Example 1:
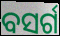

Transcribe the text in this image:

ବସର୍ଗ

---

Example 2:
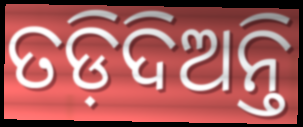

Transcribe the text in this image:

ତଡ଼ିଦିଅନ୍ତି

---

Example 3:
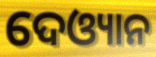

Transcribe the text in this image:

ଦେଓ୍ୟାନ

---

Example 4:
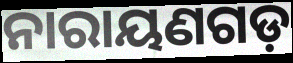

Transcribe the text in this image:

ନାରାୟଣଗଡ଼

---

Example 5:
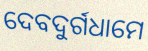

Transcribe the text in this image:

ଦେବଦୁର୍ଗଧାମେ